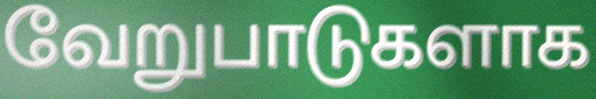
வேறுபாடுகளாக